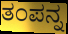
ತಂಪನ್ನ